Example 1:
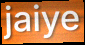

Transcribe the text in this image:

jaiye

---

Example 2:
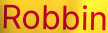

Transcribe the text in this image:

Robbin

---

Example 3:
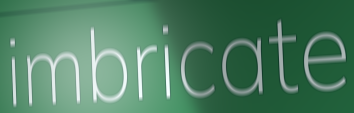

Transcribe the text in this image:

imbricate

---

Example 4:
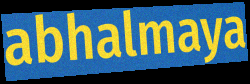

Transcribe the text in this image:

abhalmaya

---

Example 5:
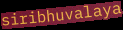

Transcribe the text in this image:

siribhuvalaya